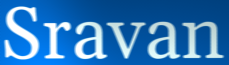
Sravan